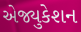
એજ્યુકેશન